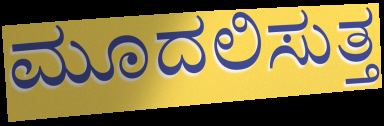
ಮೂದಲಿಸುತ್ತ